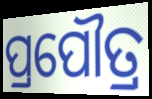
ପ୍ରପୌତ୍ର